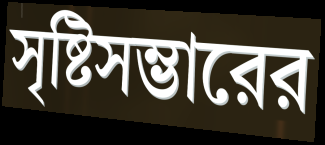
সৃষ্টিসম্ভারের